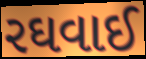
રઘવાઈ